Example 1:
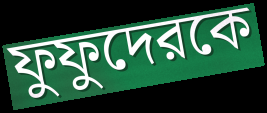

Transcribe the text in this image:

ফুফুদেরকে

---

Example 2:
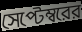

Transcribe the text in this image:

সেপ্টেম্বরের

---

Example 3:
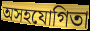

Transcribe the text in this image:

অসহযোগিতা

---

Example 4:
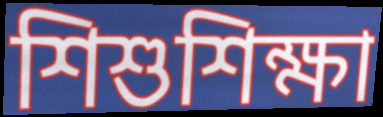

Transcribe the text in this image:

শিশুশিক্ষা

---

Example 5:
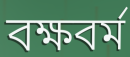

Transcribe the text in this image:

বক্ষবর্ম